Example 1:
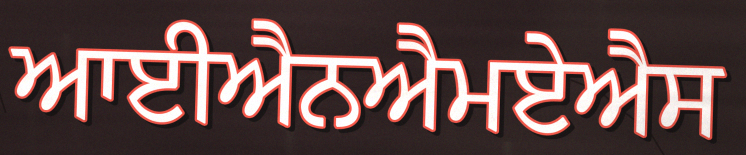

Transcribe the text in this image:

ਆਈਐਨਐਮਏਐਸ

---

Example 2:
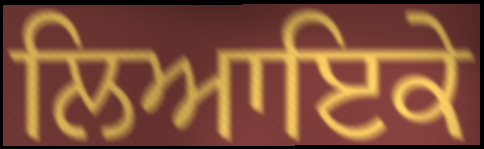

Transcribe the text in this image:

ਲਿਆਇਕੇ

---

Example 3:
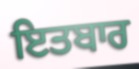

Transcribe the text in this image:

ਇਤਬਾਰ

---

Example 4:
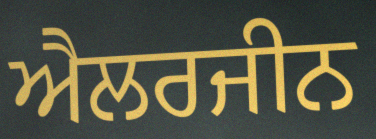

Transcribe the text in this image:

ਐਲਰਜੀਨ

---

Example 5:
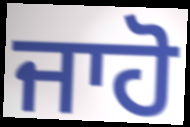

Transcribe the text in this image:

ਜਾਹੋ